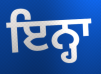
ਇਨ੍ਹਾ